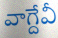
వాగ్దేవీ